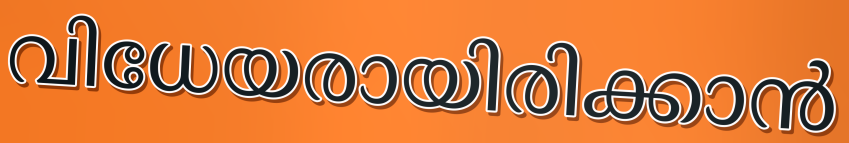
വിധേയരായിരിക്കാൻ